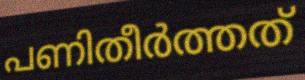
പണിതീർത്തത്